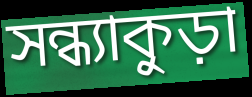
সন্ধ্যাকুড়া